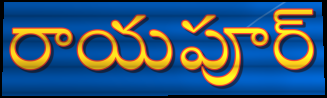
రాయపూర్